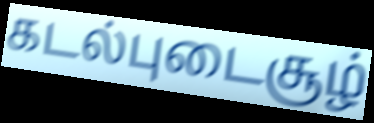
கடல்புடைசூழ்